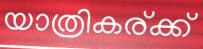
യാത്രികര്ക്ക്